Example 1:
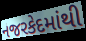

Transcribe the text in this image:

નજરકેદમાંથી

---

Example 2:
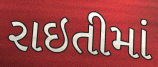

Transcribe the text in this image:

રાઇતીમાં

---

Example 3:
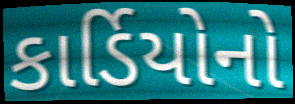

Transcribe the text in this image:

કાર્ડિયોનો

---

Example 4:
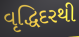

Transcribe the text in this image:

વૃદ્ધિદરથી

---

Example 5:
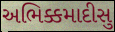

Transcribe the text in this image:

અભિક્કમાદીસુ